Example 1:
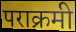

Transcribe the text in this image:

पराक्रमी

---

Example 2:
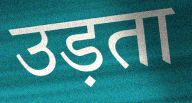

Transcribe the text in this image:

उड़ता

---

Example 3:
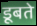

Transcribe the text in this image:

डूबते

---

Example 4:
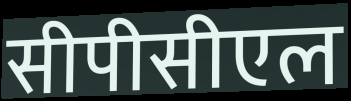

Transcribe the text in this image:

सीपीसीएल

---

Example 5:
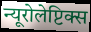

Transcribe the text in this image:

न्यूरोलेप्टिक्स